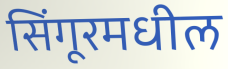
सिंगूरमधील